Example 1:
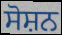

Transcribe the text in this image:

ਸੋਸ਼ਨ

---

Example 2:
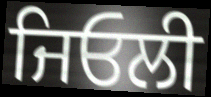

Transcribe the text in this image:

ਜਿਓਲੀ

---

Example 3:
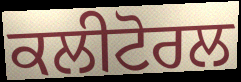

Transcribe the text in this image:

ਕਲੀਟੋਰਲ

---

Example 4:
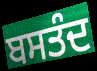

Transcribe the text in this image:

ਬਸਤੰਦ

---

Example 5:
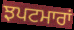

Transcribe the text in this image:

ਝਪਟਮਾਰਾਂ